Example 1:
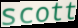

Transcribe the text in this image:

scott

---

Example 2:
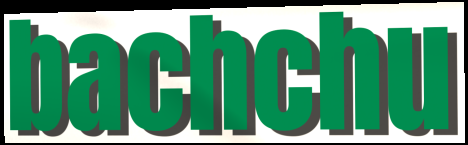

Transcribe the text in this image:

bachchu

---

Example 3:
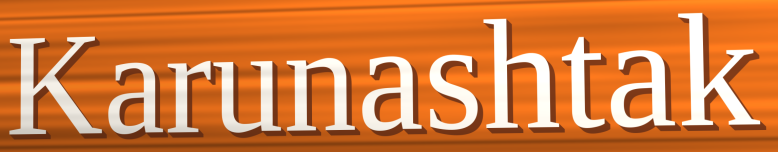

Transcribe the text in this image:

Karunashtak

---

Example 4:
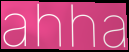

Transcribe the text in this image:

ahha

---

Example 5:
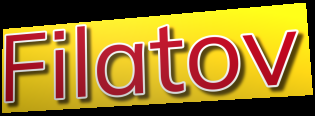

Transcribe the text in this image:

Filatov